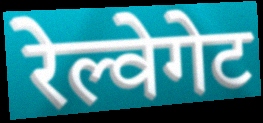
रेल्वेगेट